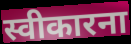
स्वीकारना